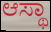
ಆಸ್ಥಾ